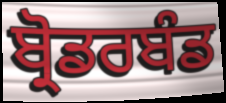
ਬ੍ਰੋਡਰਬੰਡ